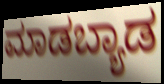
ಮಾಡಬ್ಯಾಡ